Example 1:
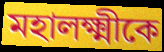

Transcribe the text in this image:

মহালক্ষ্মীকে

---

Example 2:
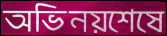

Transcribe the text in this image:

অভিনয়শেষে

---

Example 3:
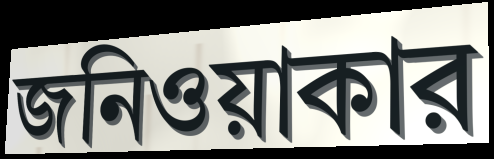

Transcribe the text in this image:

জনিওয়াকার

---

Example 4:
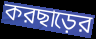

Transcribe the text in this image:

করছাড়ের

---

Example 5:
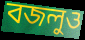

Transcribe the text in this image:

বজলুও